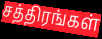
சத்திரங்கள்